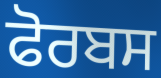
ਫੋਰਬਸ